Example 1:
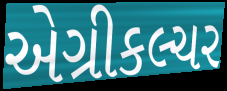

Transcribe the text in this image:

એગ્રીકલ્ચર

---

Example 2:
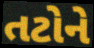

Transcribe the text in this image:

તટોને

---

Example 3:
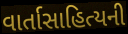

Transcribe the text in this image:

વાર્તાસાહિત્યની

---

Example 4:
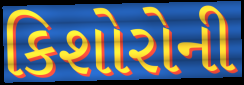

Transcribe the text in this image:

કિશોરોની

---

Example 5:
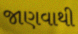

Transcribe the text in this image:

જાણવાથી